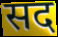
सद